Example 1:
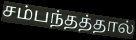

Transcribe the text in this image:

சம்பந்தத்தால்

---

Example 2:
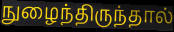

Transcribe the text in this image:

நுழைந்திருந்தால்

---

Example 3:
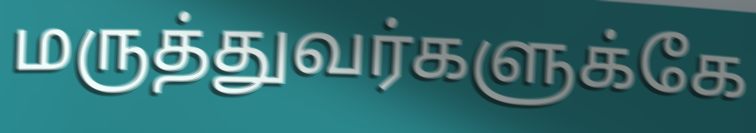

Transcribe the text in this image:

மருத்துவர்களுக்கே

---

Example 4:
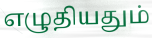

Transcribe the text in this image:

எழுதியதும்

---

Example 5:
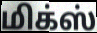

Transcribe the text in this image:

மிக்ஸ்